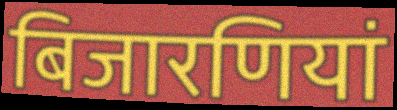
बिजारणियां